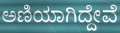
ಅಣಿಯಾಗಿದ್ದೇವೆ